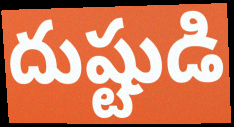
దుష్టుడి